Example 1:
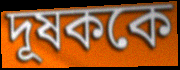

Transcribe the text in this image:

দূষককে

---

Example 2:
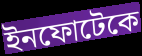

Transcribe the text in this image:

ইনফোটেকে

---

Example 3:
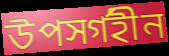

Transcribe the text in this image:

উপসর্গহীন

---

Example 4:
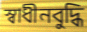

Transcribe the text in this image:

স্বাধীনবুদ্ধি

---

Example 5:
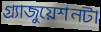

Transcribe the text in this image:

গ্র্যাজুয়েশনটা